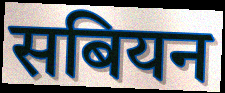
सबियन